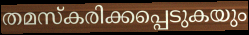
തമസ്കരിക്കപ്പെടുകയും